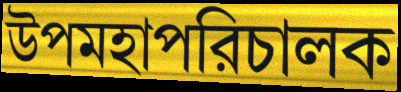
উপমহাপরিচালক